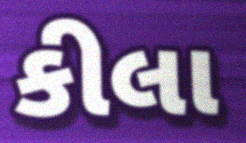
કીલા